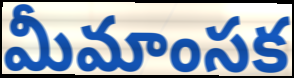
మీమాంసక